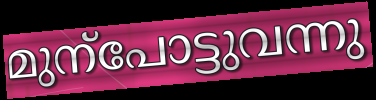
മുന്പോട്ടുവന്നു